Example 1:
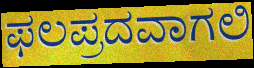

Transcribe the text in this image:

ಫಲಪ್ರದವಾಗಲಿ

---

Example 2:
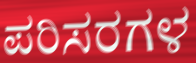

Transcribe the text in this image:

ಪರಿಸರಗಳ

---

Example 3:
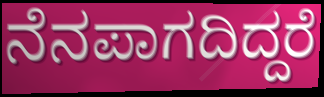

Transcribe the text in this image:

ನೆನಪಾಗದಿದ್ದರೆ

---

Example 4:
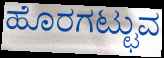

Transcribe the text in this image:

ಹೊರಗಟ್ಟುವ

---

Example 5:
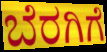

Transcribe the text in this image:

ಬೆರಗಿಗೆ